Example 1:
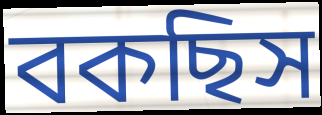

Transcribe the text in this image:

বকছিস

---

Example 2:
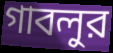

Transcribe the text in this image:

গাবলুর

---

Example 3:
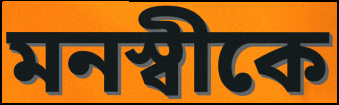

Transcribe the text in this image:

মনস্বীকে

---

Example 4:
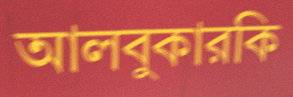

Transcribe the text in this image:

আলবুকারকি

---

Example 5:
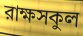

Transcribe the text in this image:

রাক্ষসকুল